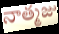
నాత్మజు